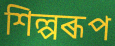
শিল্পৰূপ